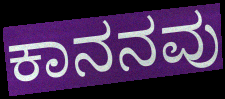
ಕಾನನವು